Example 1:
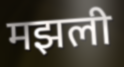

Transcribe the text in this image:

मझली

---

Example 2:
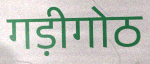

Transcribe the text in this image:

गड़ीगोठ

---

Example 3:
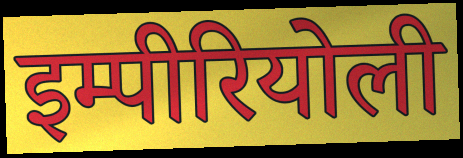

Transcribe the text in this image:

इम्पीरियोली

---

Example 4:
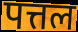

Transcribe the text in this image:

पत्तल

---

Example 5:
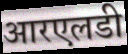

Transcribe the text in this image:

आरएलडी